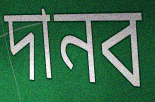
দানব